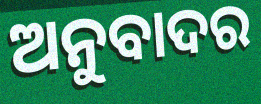
ଅନୁବାଦର